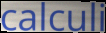
calculi